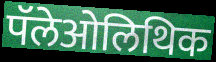
पॅलेओलिथिक